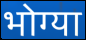
भोग्या